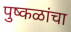
पुष्कळांचा